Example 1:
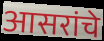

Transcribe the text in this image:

आसरांचे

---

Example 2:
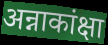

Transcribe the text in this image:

अन्नाकांक्षा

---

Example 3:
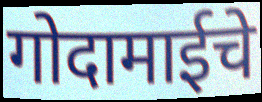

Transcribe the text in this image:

गोदामाईचे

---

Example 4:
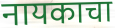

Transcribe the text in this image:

नायकाचा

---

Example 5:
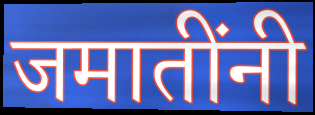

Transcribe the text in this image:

जमातींनी